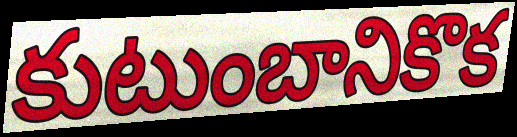
కుటుంబానికొక